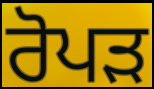
ਰੋਪੜ